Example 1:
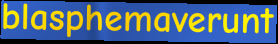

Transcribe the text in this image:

blasphemaverunt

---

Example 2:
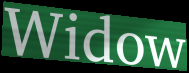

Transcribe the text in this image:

Widow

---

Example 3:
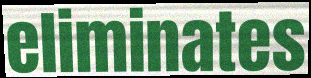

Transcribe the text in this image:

eliminates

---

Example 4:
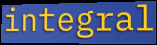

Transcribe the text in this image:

integral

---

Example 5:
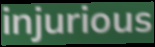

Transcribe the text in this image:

injurious